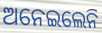
ଅନେଇଲେନି